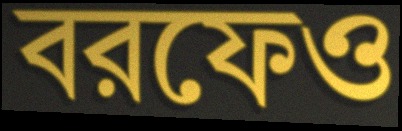
বরফেও